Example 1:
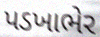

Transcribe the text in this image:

પડખાભેર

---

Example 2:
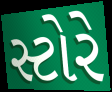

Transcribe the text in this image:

સ્ટોરે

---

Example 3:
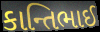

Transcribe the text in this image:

કાન્તિભાઈ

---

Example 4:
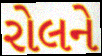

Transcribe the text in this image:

રોલને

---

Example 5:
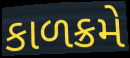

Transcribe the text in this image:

કાળક્રમે